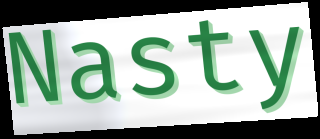
Nasty